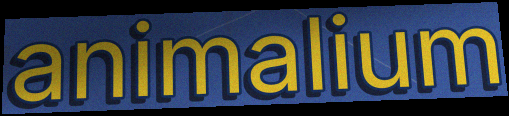
animalium